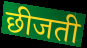
छीजती